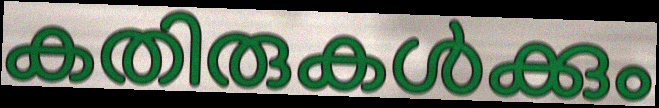
കതിരുകൾക്കും